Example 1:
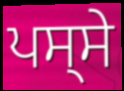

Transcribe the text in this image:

ਪਸ੍ਸੇ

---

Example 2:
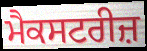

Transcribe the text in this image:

ਮੈਕਸਟਰੀਜ਼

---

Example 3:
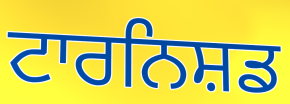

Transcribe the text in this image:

ਟਾਰਨਿਸ਼ਡ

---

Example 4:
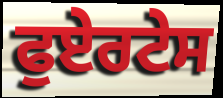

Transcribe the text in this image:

ਫੁਏਰਟੇਸ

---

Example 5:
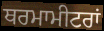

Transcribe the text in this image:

ਥਰਮਾਮੀਟਰਾਂ